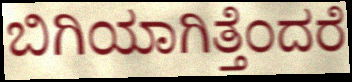
ಬಿಗಿಯಾಗಿತ್ತೆಂದರೆ